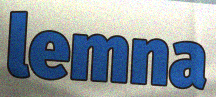
lemna